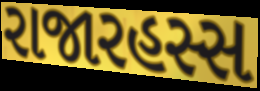
રાજારહસ્સ